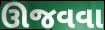
ઊજવવા